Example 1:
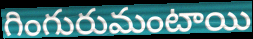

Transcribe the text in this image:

గింగురుమంటాయి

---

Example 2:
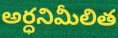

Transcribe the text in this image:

అర్ధనిమీలిత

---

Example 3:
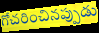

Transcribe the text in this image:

గోచరించినప్పుడు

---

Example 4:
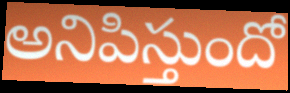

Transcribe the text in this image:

అనిపిస్తుందో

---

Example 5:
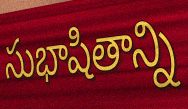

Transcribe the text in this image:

సుభాషితాన్ని